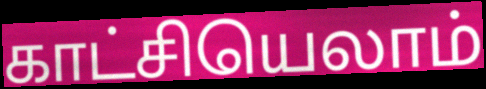
காட்சியெலாம்